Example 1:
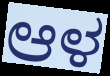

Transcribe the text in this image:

ಆಳ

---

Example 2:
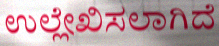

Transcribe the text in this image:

ಉಲ್ಲೇಖಿಸಲಾಗಿದೆ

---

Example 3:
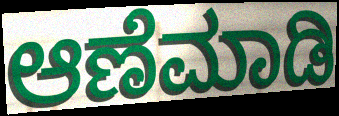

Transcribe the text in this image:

ಆಣೆಮಾಡಿ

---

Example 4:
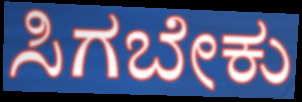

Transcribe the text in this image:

ಸಿಗಬೇಕು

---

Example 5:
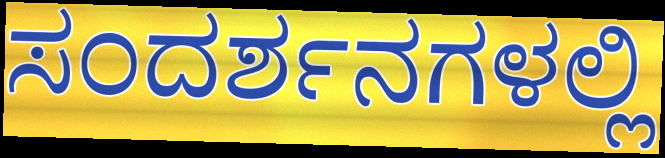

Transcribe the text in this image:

ಸಂದರ್ಶನಗಳಲ್ಲಿ